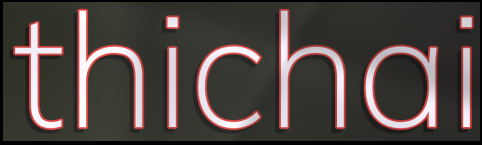
thichai